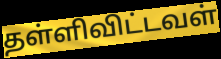
தள்ளிவிட்டவள்